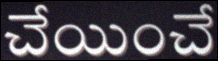
చేయించే